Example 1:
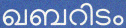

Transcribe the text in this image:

ഖബറിടം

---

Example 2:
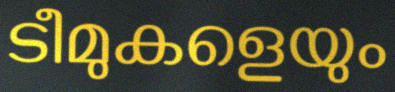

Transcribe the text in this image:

ടീമുകളെയും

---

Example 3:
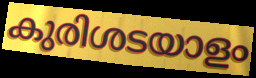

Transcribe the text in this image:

കുരിശടയാളം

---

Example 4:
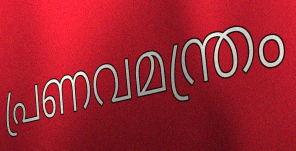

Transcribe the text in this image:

പ്രണവമന്ത്രം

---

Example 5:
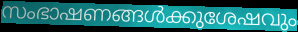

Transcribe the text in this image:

സംഭാഷണങ്ങൾക്കുശേഷവും